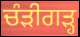
ਚੰੜੀਗੜ੍ਹ